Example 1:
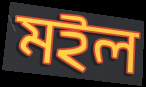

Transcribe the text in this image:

মইল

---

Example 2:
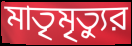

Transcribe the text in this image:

মাতৃমৃত্যুর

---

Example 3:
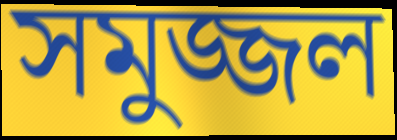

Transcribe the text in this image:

সমুজ্জল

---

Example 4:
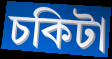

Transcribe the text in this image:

চকিটা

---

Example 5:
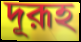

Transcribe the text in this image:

দূরূহ